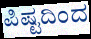
ಪಿಷ್ಟದಿಂದ